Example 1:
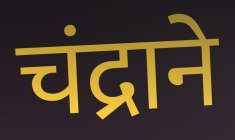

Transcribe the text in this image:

चंद्राने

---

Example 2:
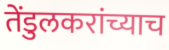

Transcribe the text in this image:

तेंडुलकरांच्याच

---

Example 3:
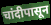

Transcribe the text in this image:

चांदीपासून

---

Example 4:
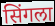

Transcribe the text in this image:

सिंगला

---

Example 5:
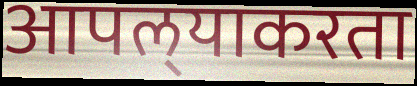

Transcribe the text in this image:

आपल्याकरता